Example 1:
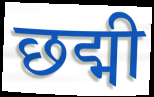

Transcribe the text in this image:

छद्मी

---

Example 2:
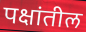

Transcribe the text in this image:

पक्षांतील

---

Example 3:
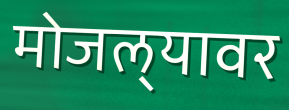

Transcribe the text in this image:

मोजल्यावर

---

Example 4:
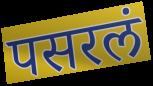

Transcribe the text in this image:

पसरलं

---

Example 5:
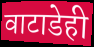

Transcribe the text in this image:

वाटाडेही